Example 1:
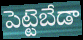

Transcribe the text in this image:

పెట్టెబేడా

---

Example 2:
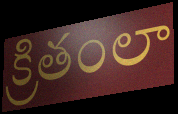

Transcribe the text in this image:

క్రితంలా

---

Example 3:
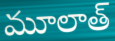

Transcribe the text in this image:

మూలాత్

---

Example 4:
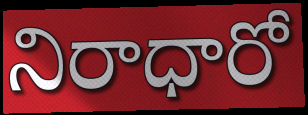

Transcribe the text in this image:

నిరాధారో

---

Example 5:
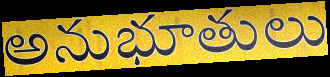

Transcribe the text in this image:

అనుభూతులు